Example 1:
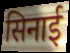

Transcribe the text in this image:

सिनाई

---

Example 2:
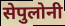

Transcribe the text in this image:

सेपुलोनी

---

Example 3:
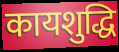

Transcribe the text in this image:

कायशुद्धि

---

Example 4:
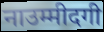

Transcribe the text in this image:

नाउम्मीदगी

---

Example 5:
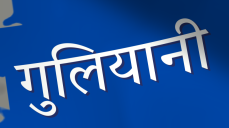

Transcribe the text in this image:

गुलियानी